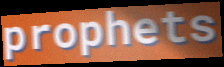
prophets